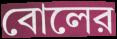
বোলের